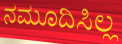
ನಮೂದಿಸಿಲ್ಲ